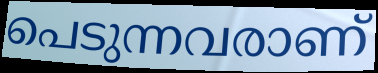
പെടുന്നവരാണ്